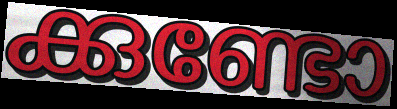
ക്കുണ്ടോ